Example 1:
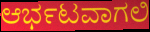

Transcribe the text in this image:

ಆರ್ಭಟವಾಗಲಿ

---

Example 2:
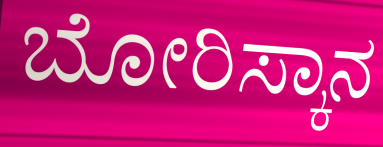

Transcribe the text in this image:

ಬೋರಿಸ್ಕಾನ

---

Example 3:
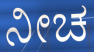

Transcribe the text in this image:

ನೀಚ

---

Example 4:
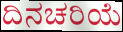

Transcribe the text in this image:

ದಿನಚರಿಯೆ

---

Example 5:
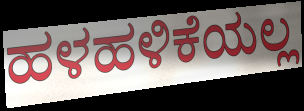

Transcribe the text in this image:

ಹಳಹಳಿಕೆಯಲ್ಲ